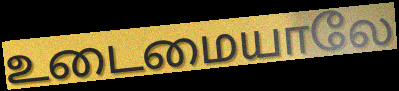
உடைமையாலே